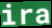
ira